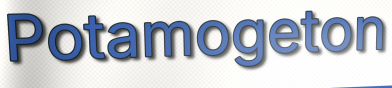
Potamogeton